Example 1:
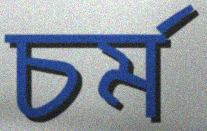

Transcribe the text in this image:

চৰ্ম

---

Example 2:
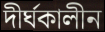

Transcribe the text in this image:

দীৰ্ঘকালীন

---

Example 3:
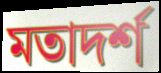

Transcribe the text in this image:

মতাদৰ্শ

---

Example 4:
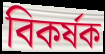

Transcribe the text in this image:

বিকৰ্ষক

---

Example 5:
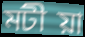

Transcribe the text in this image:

মটীয়া